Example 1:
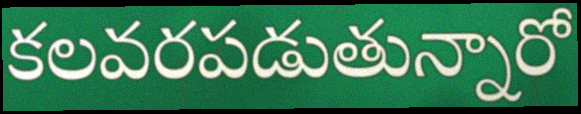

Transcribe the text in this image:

కలవరపడుతున్నారో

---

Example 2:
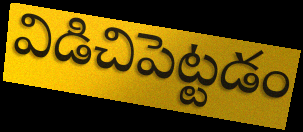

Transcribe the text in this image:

విడిచిపెట్టడం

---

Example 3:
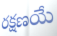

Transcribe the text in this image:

రక్షణయే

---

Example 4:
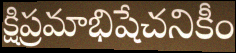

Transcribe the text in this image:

క్షిప్రమాభిషేచనికీం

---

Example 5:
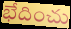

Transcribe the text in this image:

భేదించు